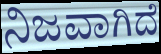
ನಿಜವಾಗಿದೆ